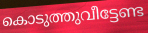
കൊടുത്തുവീട്ടേണ്ട